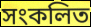
সংকলিত